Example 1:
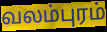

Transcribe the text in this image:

வலம்புரம்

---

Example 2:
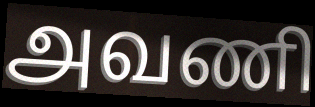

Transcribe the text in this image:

அவணி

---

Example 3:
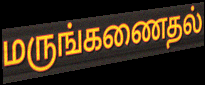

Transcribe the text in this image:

மருங்கணைதல்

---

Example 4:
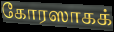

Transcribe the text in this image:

கோரஸாகக்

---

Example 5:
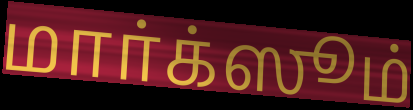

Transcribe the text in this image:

மார்க்ஸூம்